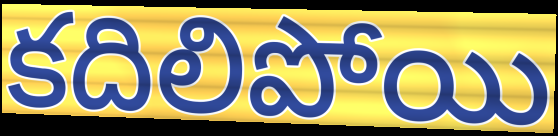
కదిలిపోయి